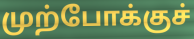
முற்போக்குச்